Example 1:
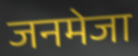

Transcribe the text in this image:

जनमेजा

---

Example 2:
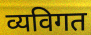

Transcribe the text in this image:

व्यविगत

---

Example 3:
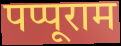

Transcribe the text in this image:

पप्पूराम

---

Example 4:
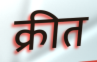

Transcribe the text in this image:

क्रीत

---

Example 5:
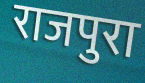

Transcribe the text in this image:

राजपुरा